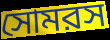
সোমরস